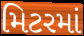
મિટરમાં